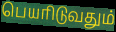
பெயரிடுவதும்